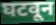
घटवून